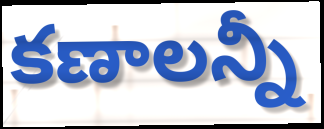
కణాలన్నీ